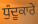
ਧੁੰਦੂਕਾਰੇ